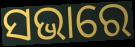
ସଭାରେ